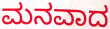
ಮನವಾದ